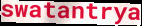
swatantrya